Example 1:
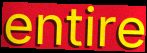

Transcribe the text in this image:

entire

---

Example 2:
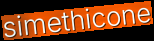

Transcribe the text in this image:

simethicone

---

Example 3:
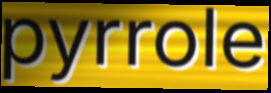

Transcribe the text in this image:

pyrrole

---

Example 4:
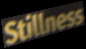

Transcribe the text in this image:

Stillness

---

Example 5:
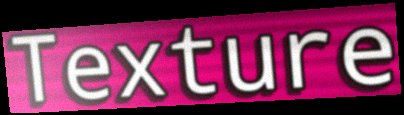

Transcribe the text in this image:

Texture